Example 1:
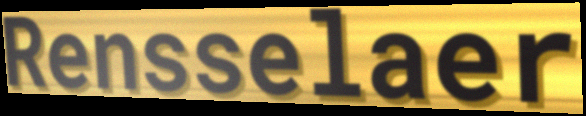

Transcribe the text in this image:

Rensselaer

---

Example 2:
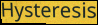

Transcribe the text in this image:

Hysteresis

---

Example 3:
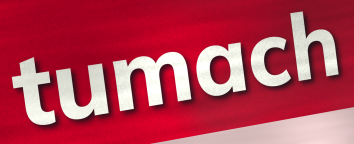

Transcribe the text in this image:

tumach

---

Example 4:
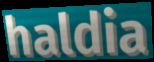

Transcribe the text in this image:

haldia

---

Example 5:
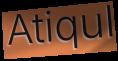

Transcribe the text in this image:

Atiqul